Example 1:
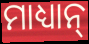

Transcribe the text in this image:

ମାଧ୍ୟାନ୍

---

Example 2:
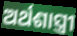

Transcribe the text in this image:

ଅର୍ଥଶାସ୍ତ୍ରୀ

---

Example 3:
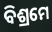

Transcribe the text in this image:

ବିଶ୍ରମେ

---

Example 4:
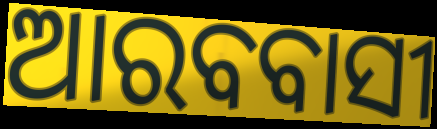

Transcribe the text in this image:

ଆରବବାସୀ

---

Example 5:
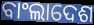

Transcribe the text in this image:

ବାଂଲାଦେଶ